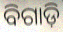
ବିଗାଡ଼ି